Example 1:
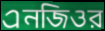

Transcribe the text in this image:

এনজিওর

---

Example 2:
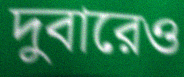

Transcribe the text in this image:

দুবারেও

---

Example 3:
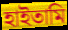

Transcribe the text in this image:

হাইতামি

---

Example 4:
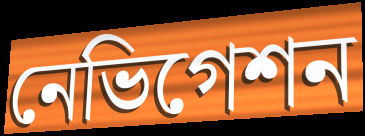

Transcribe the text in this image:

নেভিগেশন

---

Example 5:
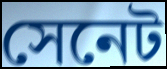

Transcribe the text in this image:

সেনেট